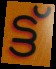
ട്ട്